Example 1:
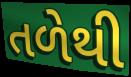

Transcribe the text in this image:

તળેથી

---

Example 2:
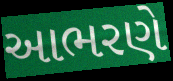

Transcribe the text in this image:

આભરણે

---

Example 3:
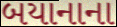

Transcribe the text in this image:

બયાનાના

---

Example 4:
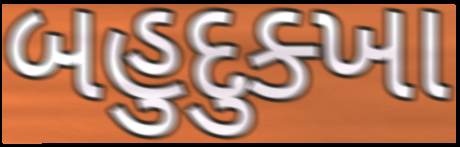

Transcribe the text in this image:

બહુદુક્ખા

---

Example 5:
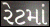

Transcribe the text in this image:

રેટમાં